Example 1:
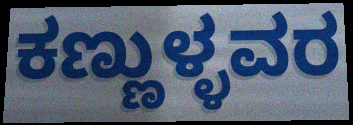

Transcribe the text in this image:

ಕಣ್ಣುಳ್ಳವರ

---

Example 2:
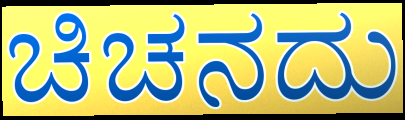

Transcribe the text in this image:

ಚಿಚನದು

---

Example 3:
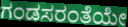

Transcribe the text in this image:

ಗಂಡಸರಂತೆಯೇ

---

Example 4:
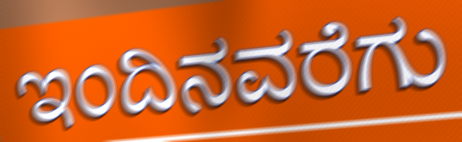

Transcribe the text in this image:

ಇಂದಿನವರೆಗು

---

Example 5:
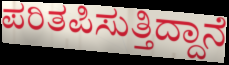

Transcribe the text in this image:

ಪರಿತಪಿಸುತ್ತಿದ್ದಾನೆ